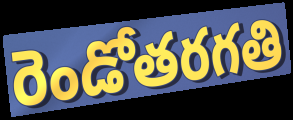
రెండోతరగతి